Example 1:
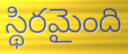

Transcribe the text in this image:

స్థిరమైంది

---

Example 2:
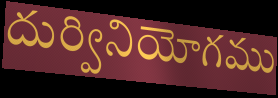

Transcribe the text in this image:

దుర్వినియోగము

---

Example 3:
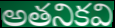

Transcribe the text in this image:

అతనికవి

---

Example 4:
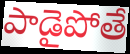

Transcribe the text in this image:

పాడైపోతే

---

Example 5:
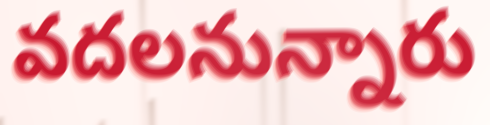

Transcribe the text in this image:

వదలనున్నారు